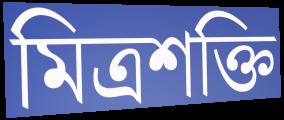
মিত্ৰশক্তি